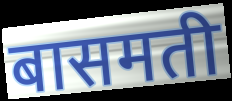
बासमती